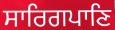
ਸਾਰਿਗਪਾਣਿ